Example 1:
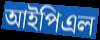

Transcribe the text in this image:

আইপিএল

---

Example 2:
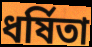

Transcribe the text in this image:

ধৰ্ষিতা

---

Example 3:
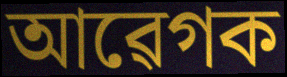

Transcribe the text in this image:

আৱেগক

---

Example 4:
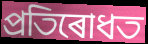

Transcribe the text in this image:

প্ৰতিৰোধত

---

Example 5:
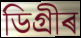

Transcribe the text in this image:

ডিগ্ৰীৰ